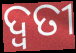
ଦ୍ଵତୀ